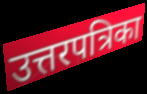
उत्तरपत्रिका